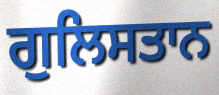
ਗੁਲਿਸਤਾਨ